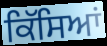
ਕਿੱਸਿਆਂ